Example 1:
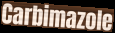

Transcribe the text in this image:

Carbimazole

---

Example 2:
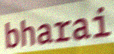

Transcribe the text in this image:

bharai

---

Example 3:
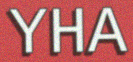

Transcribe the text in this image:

YHA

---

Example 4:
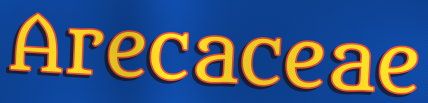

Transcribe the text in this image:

Arecaceae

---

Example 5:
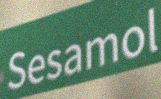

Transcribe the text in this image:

Sesamol